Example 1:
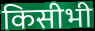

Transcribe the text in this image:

किसीभी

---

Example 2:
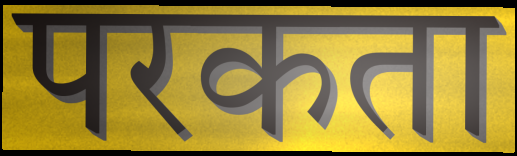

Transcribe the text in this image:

परकता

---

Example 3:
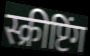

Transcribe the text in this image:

स्क्रीप्टिंग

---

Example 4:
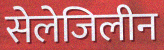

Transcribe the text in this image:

सेलेजिलीन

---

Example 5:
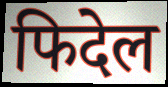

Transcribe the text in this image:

फिदेल